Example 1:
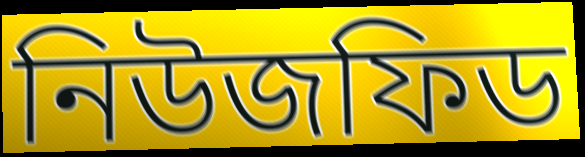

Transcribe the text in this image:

নিউজফিড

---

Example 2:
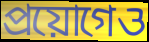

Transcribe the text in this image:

প্রয়োগেও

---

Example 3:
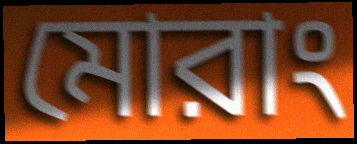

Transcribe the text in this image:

মোরাং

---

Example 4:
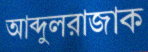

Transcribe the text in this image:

আব্দুলরাজাক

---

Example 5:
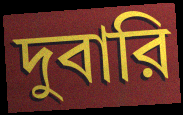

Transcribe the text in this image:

দুবারি